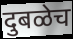
दुबळेच